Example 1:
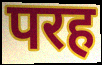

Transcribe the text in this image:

परह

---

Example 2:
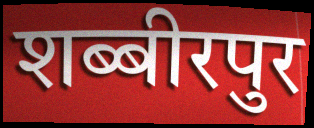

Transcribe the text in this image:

शब्‍बीरपुर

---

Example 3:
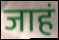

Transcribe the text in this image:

जाहं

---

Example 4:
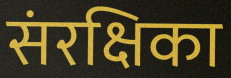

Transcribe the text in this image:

संरक्षिका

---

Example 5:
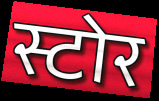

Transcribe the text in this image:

स्‍टोर